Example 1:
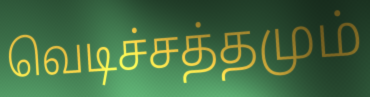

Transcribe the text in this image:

வெடிச்சத்தமும்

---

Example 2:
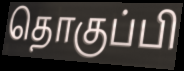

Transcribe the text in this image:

தொகுப்பி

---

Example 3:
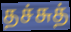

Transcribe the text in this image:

தச்சுத்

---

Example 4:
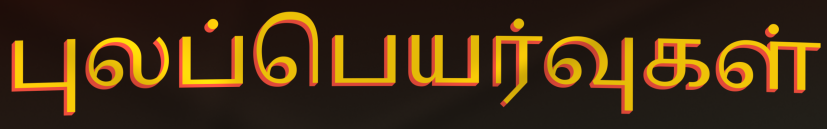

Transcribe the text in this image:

புலப்பெயர்வுகள்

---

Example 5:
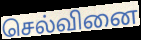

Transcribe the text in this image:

செல்வினை